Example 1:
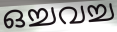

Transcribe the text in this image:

ഒച്ചവച്ച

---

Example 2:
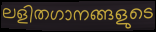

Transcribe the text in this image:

ലളിതഗാനങ്ങളുടെ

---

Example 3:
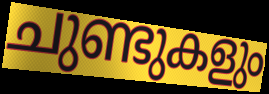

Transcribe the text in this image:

ചുണ്ടുകളും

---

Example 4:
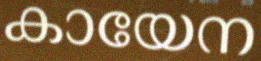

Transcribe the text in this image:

കായേന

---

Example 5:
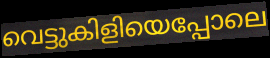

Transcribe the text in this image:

വെട്ടുകിളിയെപ്പോലെ